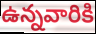
ఉన్నవారికి